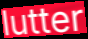
lutter